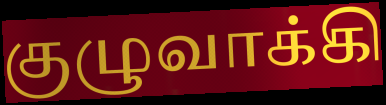
குழுவாக்கி